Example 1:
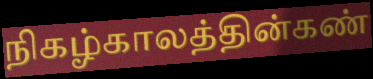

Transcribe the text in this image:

நிகழ்காலத்தின்கண்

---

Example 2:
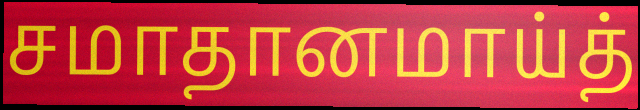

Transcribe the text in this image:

சமாதானமாய்த்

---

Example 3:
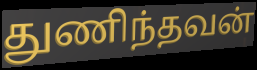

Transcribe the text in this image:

துணிந்தவன்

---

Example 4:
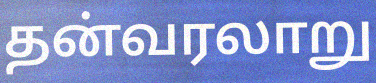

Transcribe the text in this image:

தன்வரலாறு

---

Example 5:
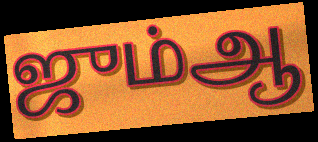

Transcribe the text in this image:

ஜும்ஆ